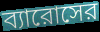
ব্যারোসের